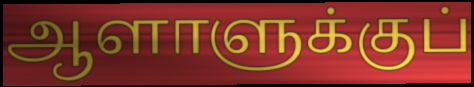
ஆளாளுக்குப்